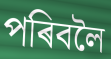
পৰিবলৈ